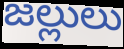
జల్లులు